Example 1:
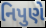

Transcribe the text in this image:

નિપુણે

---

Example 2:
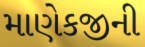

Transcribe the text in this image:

માણેકજીની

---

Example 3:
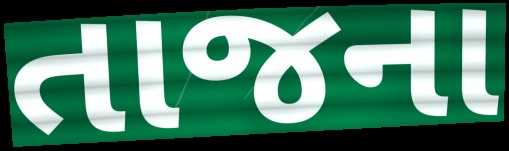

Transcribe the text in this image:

તાજના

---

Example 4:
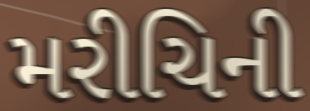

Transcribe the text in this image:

મરીચિની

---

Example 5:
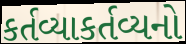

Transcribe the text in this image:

કર્તવ્યાકર્તવ્યનો